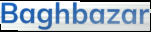
Baghbazar